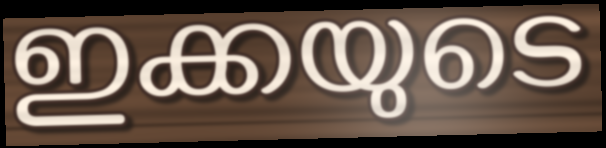
ഇക്കയുടെ